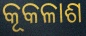
କୂକଳାଶ